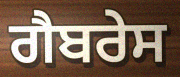
ਗੈਬਰੇਸ